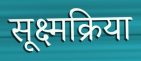
सूक्ष्मक्रिया